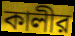
কালীর